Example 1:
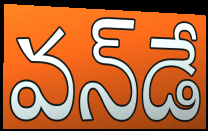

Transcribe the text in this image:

వన్‌డే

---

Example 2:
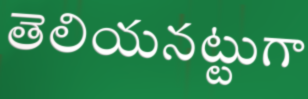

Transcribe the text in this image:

తెలియనట్టుగా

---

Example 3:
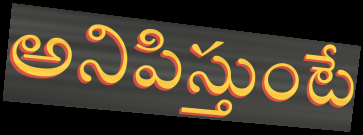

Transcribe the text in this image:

అనిపిస్తుంటే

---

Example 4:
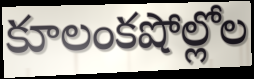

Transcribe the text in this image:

కూలంకషోల్లోల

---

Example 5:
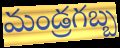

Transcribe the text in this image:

మండ్రగబ్బ